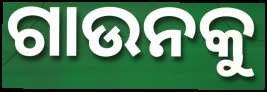
ଗାଉନକୁ